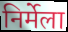
निर्मेला